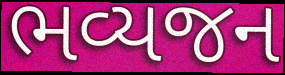
ભવ્યજન